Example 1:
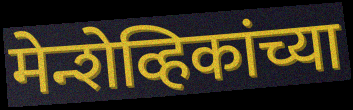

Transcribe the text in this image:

मेन्शेव्हिकांच्या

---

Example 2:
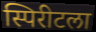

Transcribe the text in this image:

स्पिरीटला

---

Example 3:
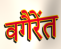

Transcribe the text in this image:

वगैरेंत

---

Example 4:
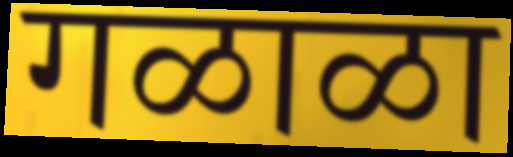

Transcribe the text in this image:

गळाळा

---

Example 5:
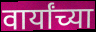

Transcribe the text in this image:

वार्यांच्या